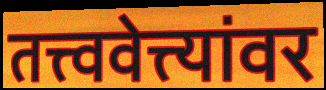
तत्त्ववेत्त्यांवर